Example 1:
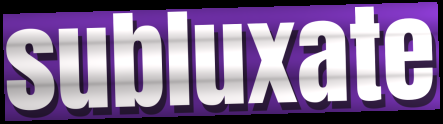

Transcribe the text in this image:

subluxate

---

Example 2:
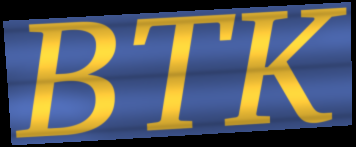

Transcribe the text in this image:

BTK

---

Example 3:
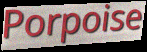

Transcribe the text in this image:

Porpoise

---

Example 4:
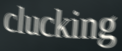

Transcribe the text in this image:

clucking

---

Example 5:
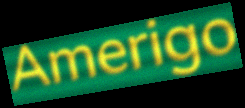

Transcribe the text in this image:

Amerigo